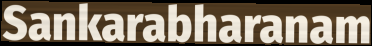
Sankarabharanam